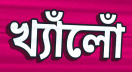
খ্যাঁলোঁ